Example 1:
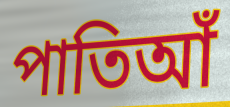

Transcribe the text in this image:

পাতিআঁ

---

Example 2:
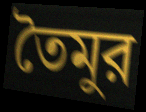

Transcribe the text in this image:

তৈমুর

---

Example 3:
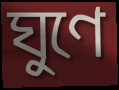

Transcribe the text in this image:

ঘুণে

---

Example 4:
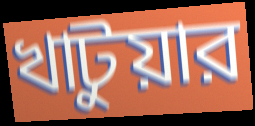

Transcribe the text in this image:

খাটুয়ার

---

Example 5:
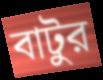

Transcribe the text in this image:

বাটুর